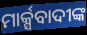
ମାର୍କ୍ସବାଦୀଙ୍କ